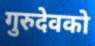
गुरुदेवको